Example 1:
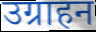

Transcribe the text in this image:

उग्राहन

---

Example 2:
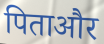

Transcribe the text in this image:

पिताऔर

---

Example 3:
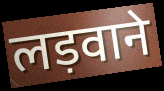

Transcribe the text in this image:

लड़वाने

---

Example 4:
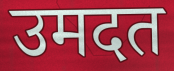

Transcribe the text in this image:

उमदत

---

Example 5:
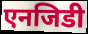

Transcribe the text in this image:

एनजिडी